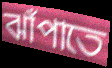
ঝাঁপাতে